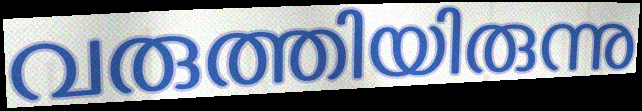
വരുത്തിയിരുന്നു